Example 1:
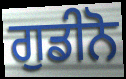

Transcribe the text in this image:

ਗੁਡੀਨੋ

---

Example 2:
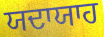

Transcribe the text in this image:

ਯਦਾਯਾਹ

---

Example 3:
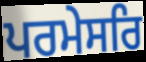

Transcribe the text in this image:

ਪਰਮੇਸਰਿ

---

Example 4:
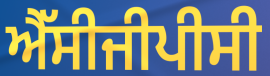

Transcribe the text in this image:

ਐੱਸੀਜੀਪੀਸੀ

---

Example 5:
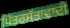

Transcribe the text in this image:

ਪਿੱਤਰਸੱਤਾਵਾਦੀ